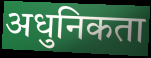
अधुनिकता